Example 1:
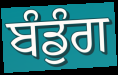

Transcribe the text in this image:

ਬੰਡੁੰਗ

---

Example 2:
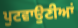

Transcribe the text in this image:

ਪੁਟਵਾਉਣੀਆਂ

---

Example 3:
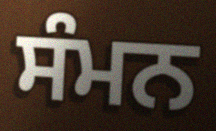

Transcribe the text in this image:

ਸੰਮਨ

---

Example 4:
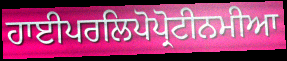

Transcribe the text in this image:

ਹਾਈਪਰਲਿਪੋਪ੍ਰੋਟੀਨਮੀਆ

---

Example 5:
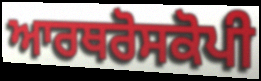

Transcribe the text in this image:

ਆਰਥਰੋਸਕੋਪੀ